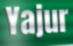
Yajur